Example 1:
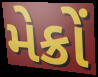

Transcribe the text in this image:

મેક્રોં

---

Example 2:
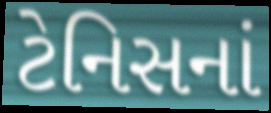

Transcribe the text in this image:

ટેનિસનાં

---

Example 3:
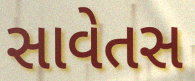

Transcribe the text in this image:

સાવેતસ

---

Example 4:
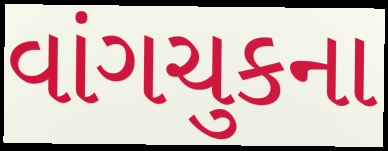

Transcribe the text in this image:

વાંગચુકના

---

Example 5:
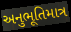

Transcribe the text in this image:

અનુભૂતિમાત્ર